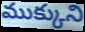
ముక్కుని